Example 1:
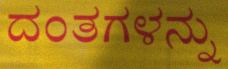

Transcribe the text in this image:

ದಂತಗಳನ್ನು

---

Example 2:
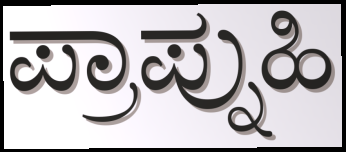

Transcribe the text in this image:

ಪ್ರಾಪ್ನುಹಿ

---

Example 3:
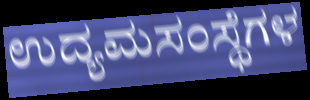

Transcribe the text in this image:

ಉದ್ಯಮಸಂಸ್ಥೆಗಳ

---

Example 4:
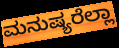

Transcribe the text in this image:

ಮನುಷ್ಯರೆಲ್ಲಾ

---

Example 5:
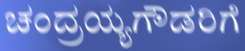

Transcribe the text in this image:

ಚಂದ್ರಯ್ಯಗೌಡರಿಗೆ